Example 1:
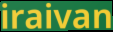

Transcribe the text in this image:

iraivan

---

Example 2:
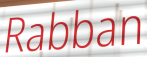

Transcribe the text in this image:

Rabban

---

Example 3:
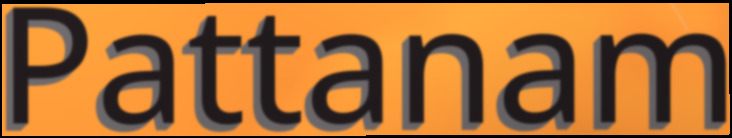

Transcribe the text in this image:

Pattanam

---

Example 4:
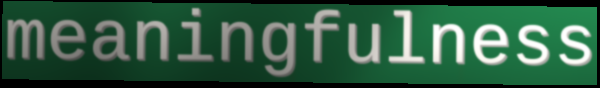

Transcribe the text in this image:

meaningfulness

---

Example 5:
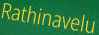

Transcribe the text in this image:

Rathinavelu